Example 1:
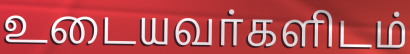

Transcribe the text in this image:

உடையவர்களிடம்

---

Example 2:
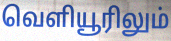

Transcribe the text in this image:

வெளியூரிலும்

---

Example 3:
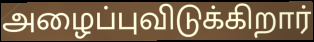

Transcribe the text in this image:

அழைப்புவிடுக்கிறார்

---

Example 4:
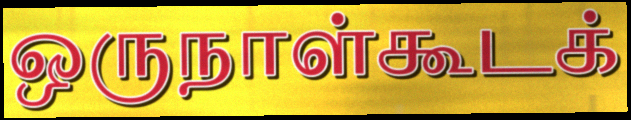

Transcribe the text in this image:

ஒருநாள்கூடக்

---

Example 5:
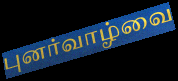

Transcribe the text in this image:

புனர்வாழ்வை